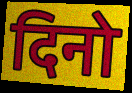
दिनो